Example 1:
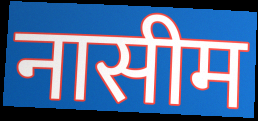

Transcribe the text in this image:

नासीम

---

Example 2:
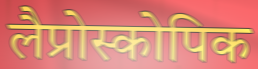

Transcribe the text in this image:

लैप्रोस्कोपिक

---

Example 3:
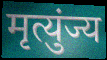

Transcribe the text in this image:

मृत्युंज्य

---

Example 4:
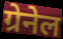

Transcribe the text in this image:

ग्रेनेल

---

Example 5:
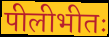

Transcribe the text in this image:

पीलीभीतः